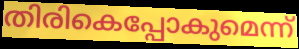
തിരികെപ്പോകുമെന്ന്